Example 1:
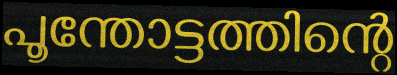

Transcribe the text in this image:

പൂന്തോട്ടത്തിന്റെ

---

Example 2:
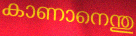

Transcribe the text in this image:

കാണാനെന്തു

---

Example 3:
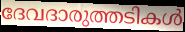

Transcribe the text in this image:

ദേവദാരുത്തടികൾ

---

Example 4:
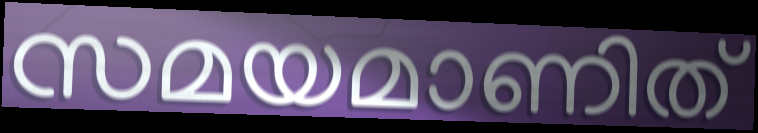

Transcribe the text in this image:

സമയമാണിത്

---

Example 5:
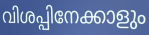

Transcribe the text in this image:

വിശപ്പിനേക്കാളും